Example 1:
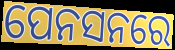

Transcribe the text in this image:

ପେନସନରେ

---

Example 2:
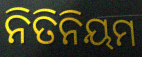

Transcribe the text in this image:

ନିତିନିୟମ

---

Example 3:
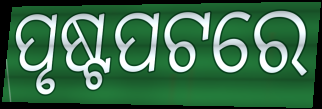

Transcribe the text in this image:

ପୃଷ୍ଟପଟରେ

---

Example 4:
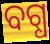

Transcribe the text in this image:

ବଗ୍ଧ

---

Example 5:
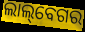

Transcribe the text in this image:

ଲାଲ୍‌ବେଗର